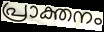
പ്രാക്തനം